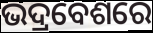
ଭଦ୍ରବେଶରେ